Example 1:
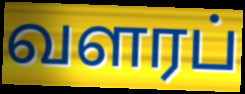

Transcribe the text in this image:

வளரப்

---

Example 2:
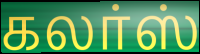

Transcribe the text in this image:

கலர்ஸ்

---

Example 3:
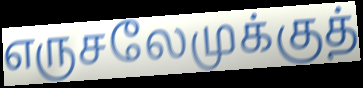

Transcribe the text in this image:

எருசலேமுக்குத்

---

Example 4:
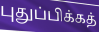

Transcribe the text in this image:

புதுப்பிக்கத்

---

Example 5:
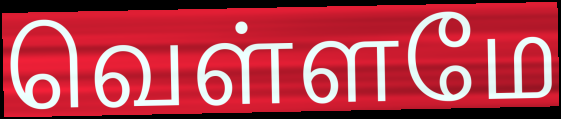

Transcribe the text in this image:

வெள்ளமே